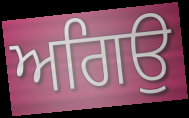
ਅਗਿਉ